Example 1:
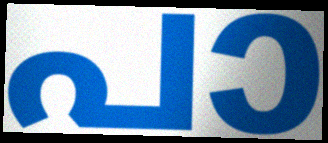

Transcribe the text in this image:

പാ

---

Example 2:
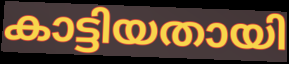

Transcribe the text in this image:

കാട്ടിയതായി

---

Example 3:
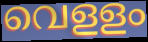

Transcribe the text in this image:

വെളളം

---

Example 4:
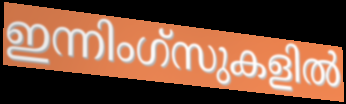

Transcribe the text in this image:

ഇന്നിംഗ്സുകളിൽ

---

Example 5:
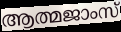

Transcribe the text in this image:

ആത്മജാംസ്